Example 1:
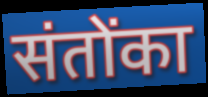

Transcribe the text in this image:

संतोंका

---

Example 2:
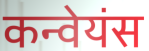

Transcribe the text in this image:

कन्वेयंस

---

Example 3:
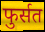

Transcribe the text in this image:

फुर्सत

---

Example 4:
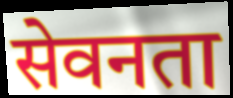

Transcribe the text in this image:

सेवनता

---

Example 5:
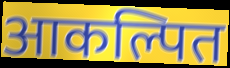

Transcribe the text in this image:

आकल्पित